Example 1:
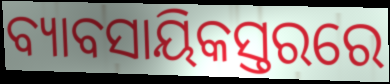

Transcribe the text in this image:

ବ୍ୟାବସାୟିକସ୍ତରରେ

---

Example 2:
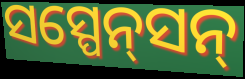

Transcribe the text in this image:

ସସ୍ପେନ୍‌ସନ୍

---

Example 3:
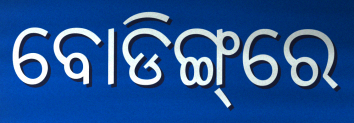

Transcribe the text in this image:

ବୋଡିଙ୍ଗ୍‌ରେ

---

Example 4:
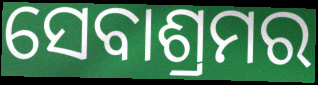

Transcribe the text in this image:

ସେବାଶ୍ରମର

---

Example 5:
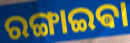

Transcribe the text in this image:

ରଙ୍ଗାଇଵା